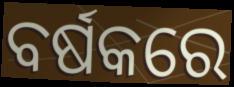
ବର୍ଷକରେ